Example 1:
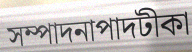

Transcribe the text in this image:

সম্পাদনাপাদটীকা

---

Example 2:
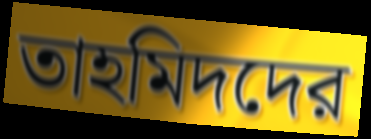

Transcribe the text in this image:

তাহমিদদের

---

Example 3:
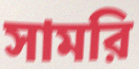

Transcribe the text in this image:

সামরি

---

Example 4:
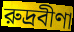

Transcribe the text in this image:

রুদ্রবীণা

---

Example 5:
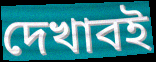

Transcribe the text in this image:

দেখাবই